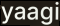
yaagi